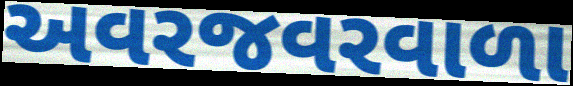
અવરજવરવાળા